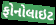
ફોનોલાઇટ